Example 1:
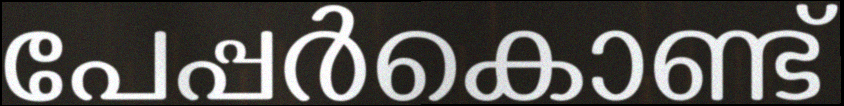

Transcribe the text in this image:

പേപ്പർകൊണ്ട്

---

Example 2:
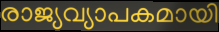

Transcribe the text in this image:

രാജ്യവ്യാപകമായി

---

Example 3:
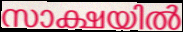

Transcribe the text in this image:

സാക്ഷയിൽ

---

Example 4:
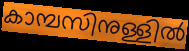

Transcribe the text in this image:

കാമ്പസിനുള്ളിൽ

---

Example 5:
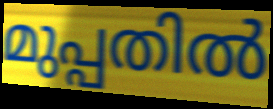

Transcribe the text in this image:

മുപ്പതിൽ